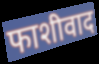
फाशीवाद